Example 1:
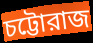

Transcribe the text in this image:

চট্টোরাজ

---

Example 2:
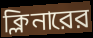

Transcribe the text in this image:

ক্লিনারের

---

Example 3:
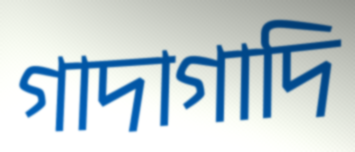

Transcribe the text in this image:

গাদাগাদি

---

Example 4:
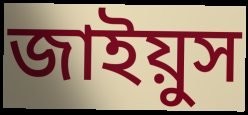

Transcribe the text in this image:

জাইয়ুস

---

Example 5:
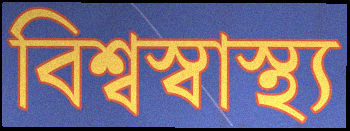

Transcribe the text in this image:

বিশ্বস্বাস্থ্য